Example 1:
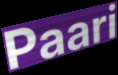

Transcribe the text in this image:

Paari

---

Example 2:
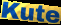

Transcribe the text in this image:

Kute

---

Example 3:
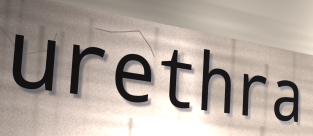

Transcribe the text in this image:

urethra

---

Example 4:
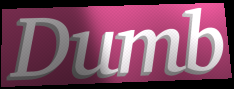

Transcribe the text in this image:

Dumb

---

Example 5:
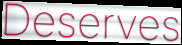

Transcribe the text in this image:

Deserves